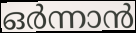
ഒർന്നാൻ